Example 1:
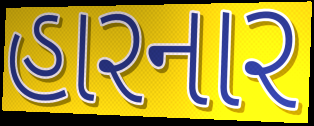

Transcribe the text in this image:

હારનાર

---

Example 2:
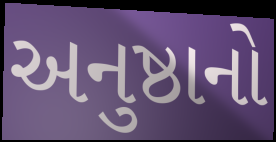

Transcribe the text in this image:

અનુષ્ઠાનો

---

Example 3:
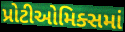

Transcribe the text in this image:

પ્રોટીઓમિક્સમાં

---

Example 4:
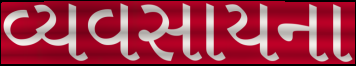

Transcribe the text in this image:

વ્યવસાયના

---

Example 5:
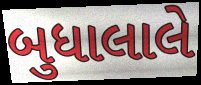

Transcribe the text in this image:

બુધાલાલે